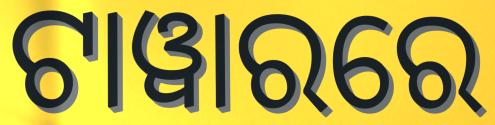
ଟାୱାରରେ